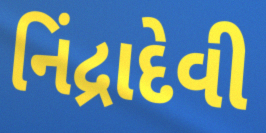
નિંદ્રાદેવી